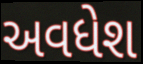
અવધેશ